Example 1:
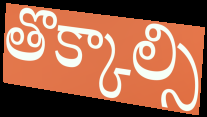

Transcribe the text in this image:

తొక్కాల్సి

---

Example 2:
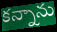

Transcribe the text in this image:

కన్నాను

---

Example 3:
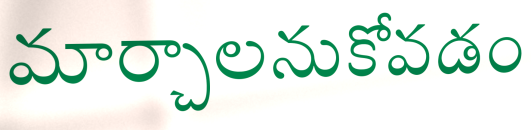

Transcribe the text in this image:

మార్చాలనుకోవడం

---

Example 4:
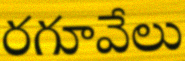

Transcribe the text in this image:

రగూవేలు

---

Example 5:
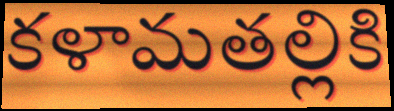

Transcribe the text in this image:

కళామతల్లికి